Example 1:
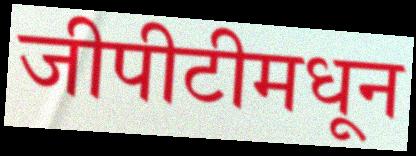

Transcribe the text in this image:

जीपीटीमधून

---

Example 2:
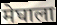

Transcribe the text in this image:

मेघाला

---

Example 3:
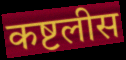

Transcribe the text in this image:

कष्टलीस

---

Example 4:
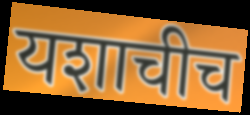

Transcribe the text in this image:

यशाचीच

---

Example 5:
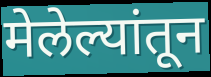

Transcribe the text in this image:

मेलेल्यांतून